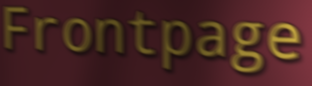
Frontpage